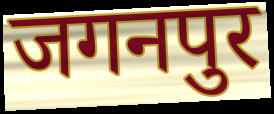
जगनपुर